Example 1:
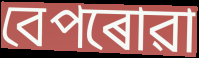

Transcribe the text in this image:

বেপৰোৱা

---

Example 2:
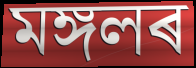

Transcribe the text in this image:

মঙ্গলৰ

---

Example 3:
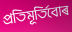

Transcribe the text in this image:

প্ৰতিমূৰ্তিবোৰ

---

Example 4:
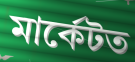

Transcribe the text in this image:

মাৰ্কেটত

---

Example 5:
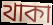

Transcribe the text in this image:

থাকা